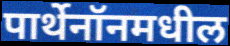
पार्थेनॉनमधील